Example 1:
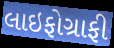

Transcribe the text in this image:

લાઇફોગ્રાફી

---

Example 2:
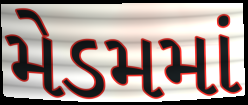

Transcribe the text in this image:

મેડમમાં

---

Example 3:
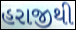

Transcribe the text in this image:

હરાજીથી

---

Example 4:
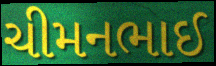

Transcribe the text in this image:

ચીમનભાઈ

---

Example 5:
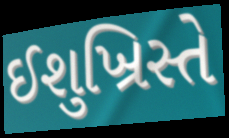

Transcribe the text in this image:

ઈશુખ્રિસ્તે